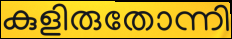
കുളിരുതോന്നി